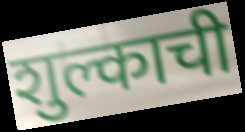
शुल्काची